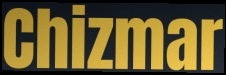
Chizmar